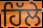
ਹਿੱਲੇ